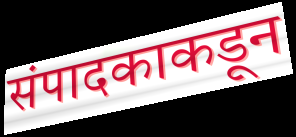
संपादकाकडून